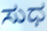
ಸುಧ